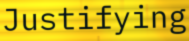
Justifying